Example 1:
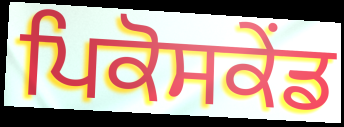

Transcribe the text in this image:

ਪਿਕੋਸਕੇਂਡ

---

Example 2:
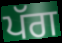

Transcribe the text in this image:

ਪੱਗ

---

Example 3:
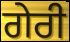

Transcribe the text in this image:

ਗੇਰੀ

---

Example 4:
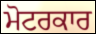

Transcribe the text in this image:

ਮੋਟਰਕਾਰ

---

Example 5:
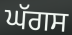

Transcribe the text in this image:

ਘੱਗਸ